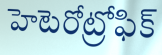
హెటెరోట్రోఫిక్